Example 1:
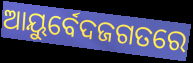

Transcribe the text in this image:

ଆୟୁର୍ବେଦଜଗତରେ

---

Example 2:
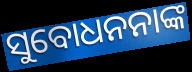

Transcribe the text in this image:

ସୁବୋଧନନାଙ୍କ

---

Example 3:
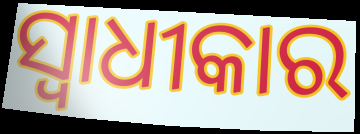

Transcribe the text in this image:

ସ୍ୱାଧୀକାର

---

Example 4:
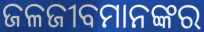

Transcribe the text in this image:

ଜଳଜୀବମାନଙ୍କର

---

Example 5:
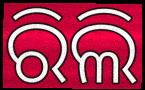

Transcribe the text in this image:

ରିଲି